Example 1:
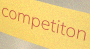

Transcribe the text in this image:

competiton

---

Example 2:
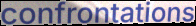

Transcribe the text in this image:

confrontations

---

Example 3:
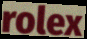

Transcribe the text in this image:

rolex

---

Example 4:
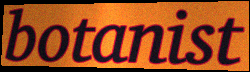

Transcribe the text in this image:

botanist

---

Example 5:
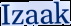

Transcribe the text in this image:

Izaak